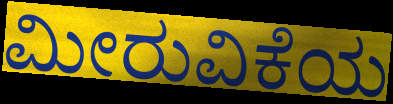
ಮೀರುವಿಕೆಯ